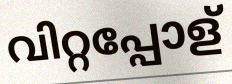
വിറ്റപ്പോള്